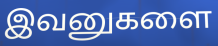
இவனுகளை